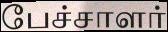
பேச்சாளர்